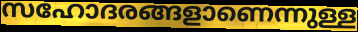
സഹോദരങ്ങളാണെന്നുള്ള